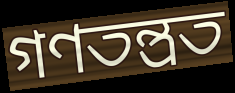
গণতন্ত্ৰত